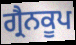
ਗ੍ਰੈਨਕੂਪ